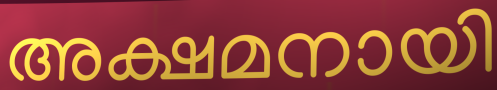
അക്ഷമനായി